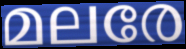
മലരേ